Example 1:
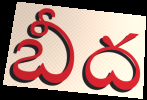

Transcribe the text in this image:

బీద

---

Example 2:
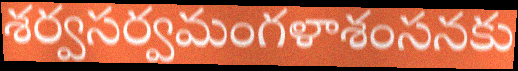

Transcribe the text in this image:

శర్వసర్వమంగళాశంసనకు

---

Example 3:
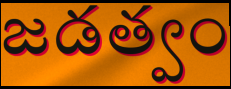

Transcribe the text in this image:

జడత్వం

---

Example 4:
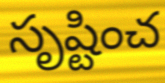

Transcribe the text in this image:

సృష్టించ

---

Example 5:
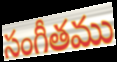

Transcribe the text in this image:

సంగీతము